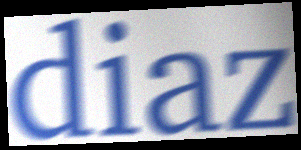
diaz